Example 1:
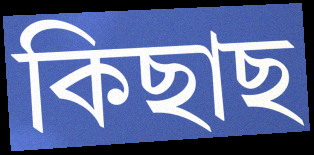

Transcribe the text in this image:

কিছাছ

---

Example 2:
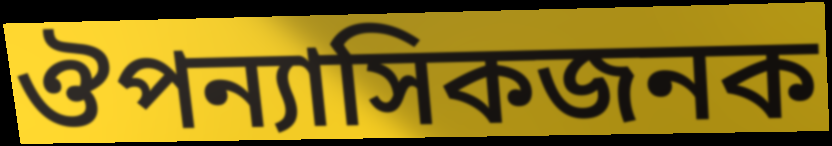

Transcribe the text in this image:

ঔপন্যাসিকজনক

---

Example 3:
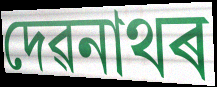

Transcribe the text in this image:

দেৱনাথৰ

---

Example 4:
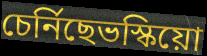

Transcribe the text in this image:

চেৰ্নিছেভস্কিয়ো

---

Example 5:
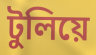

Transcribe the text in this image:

টুলিয়ে